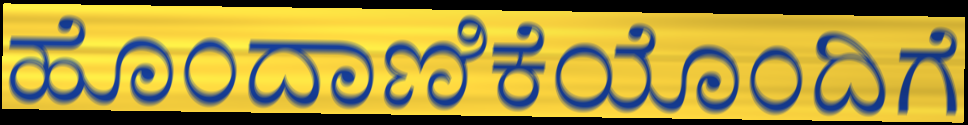
ಹೊಂದಾಣಿಕೆಯೊಂದಿಗೆ